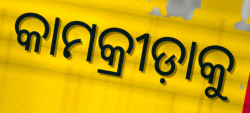
କାମକ୍ରୀଡ଼ାକୁ